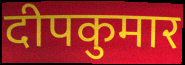
दीपकुमार